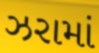
ઝરામાં